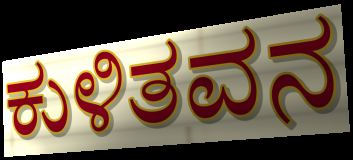
ಕುಳಿತವನ